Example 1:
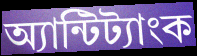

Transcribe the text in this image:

অ্যান্টিট্যাংক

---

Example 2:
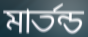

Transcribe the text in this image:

মার্তন্ড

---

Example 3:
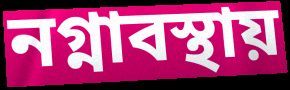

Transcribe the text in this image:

নগ্নাবস্থায়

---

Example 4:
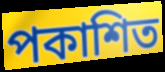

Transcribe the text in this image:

পকাশিত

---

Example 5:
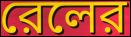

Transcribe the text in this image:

রেলের